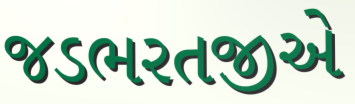
જડભરતજીએ